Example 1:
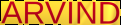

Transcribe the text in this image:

ARVIND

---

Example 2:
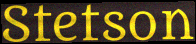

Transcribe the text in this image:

Stetson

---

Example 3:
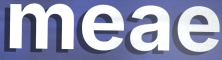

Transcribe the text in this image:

meae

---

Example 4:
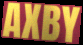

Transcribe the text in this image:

AXBY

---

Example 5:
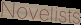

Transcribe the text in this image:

Novelists